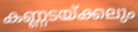
കണ്ണടയ്ക്കലും